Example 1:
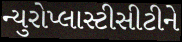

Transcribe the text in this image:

ન્યુરોપ્લાસ્ટીસીટીને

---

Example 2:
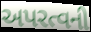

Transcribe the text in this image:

અપરત્વની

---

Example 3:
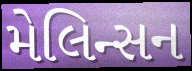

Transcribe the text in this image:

મેલિન્સન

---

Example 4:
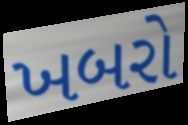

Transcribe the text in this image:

ખબરો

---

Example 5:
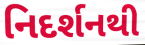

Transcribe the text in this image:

નિદર્શનથી